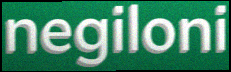
negiloni